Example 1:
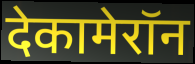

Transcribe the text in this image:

देकामेरॉन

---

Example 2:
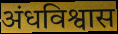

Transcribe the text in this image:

अंधविश्वास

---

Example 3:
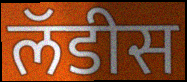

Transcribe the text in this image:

लॅडीस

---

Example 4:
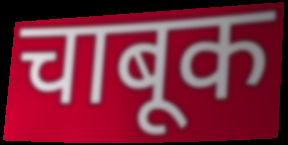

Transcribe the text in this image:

चाबूक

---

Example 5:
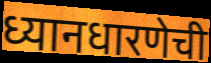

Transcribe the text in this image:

ध्यानधारणेची